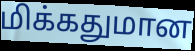
மிக்கதுமான